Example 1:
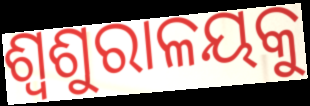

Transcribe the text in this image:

ଶ୍ୱଶୁରାଳୟକୁ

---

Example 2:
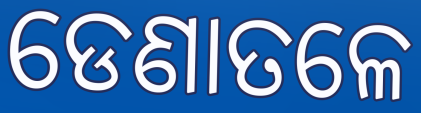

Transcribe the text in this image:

ଡେଣାତଳେ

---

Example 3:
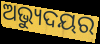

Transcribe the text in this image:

ଅଭ୍ୟୁଦୟର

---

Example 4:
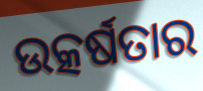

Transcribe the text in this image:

ଉତ୍କର୍ଷତାର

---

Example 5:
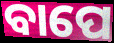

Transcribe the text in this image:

ବାପେ